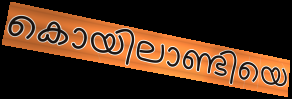
കൊയിലാണ്ടിയെ